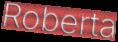
Roberta